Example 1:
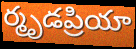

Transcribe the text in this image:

ర్మృడప్రియా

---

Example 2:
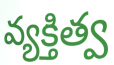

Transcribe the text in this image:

వ్యక్తిత్వ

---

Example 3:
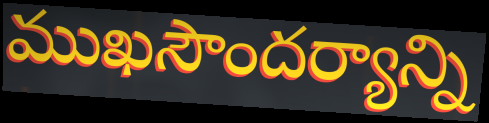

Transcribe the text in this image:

ముఖసౌందర్యాన్ని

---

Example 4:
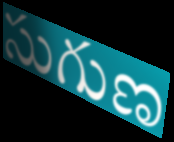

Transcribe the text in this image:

సుగుణ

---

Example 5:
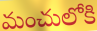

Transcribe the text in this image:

మంచులోకి